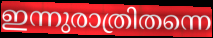
ഇന്നുരാത്രിതന്നെ